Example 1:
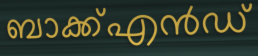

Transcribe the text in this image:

ബാക്ക്എൻഡ്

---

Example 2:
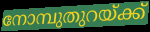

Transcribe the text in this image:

നോമ്പുതുറയ്ക്ക്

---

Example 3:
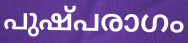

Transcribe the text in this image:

പുഷ്പരാഗം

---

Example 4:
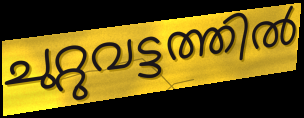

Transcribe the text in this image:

ചുറ്റുവട്ടത്തിൽ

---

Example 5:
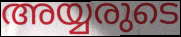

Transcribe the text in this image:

അയ്യരുടെ